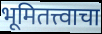
भूमितत्त्वाचा